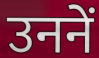
उननें